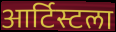
आर्टिस्टला